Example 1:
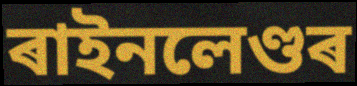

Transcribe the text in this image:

ৰাইনলেণ্ডৰ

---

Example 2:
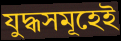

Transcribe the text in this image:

যুদ্ধসমূহেই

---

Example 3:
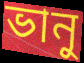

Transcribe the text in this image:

ভানু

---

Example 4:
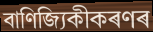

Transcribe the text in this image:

বাণিজ্যিকীকৰণৰ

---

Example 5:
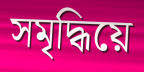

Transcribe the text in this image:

সমৃদ্ধিয়ে